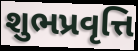
શુભપ્રવૃત્તિ